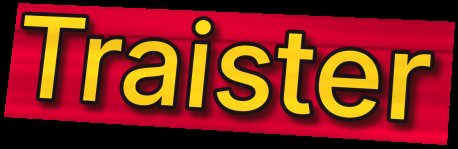
Traister